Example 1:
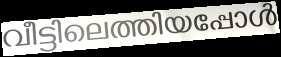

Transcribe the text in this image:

വീട്ടിലെത്തിയപ്പോൾ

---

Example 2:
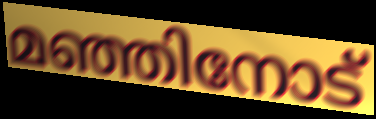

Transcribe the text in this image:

മഞ്ഞിനോട്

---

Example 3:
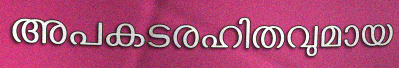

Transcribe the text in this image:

അപകടരഹിതവുമായ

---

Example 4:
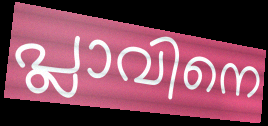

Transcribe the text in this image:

പ്ലാവിനെ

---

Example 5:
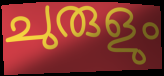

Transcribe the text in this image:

ചുരുളും